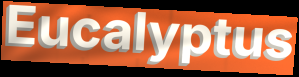
Eucalyptus